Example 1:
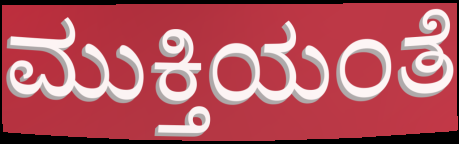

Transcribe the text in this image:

ಮುಕ್ತಿಯಂತೆ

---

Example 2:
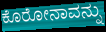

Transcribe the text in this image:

ಕೊರೋನಾವನ್ನು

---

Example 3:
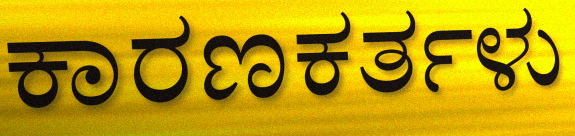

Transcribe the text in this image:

ಕಾರಣಕರ್ತಳು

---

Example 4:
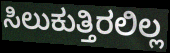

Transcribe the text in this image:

ಸಿಲುಕುತ್ತಿರಲಿಲ್ಲ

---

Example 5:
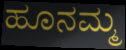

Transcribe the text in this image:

ಹೂನಮ್ಮ